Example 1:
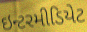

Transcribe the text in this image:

ઇન્ટરમીડિયેટ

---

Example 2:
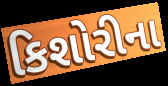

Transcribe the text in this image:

કિશોરીના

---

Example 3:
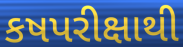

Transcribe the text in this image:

કષપરીક્ષાથી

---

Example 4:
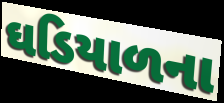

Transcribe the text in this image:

ઘડિયાળના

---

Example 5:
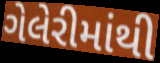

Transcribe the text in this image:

ગેલેરીમાંથી